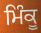
ਮਿੰਕੂ